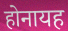
होनायह